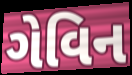
ગેવિન